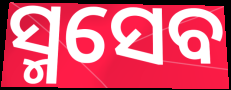
ସ୍ମସେବ